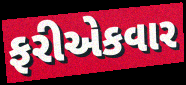
ફરીએકવાર